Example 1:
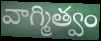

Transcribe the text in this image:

వాగ్మిత్వం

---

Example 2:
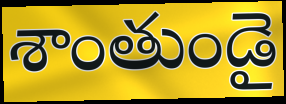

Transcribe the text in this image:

శాంతుండై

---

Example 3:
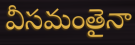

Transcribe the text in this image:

వీసమంతైనా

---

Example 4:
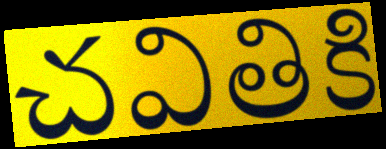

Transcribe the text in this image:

చవితికి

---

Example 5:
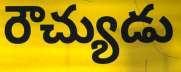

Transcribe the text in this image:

రౌచ్యుడు